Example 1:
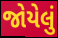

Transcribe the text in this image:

જોયેલું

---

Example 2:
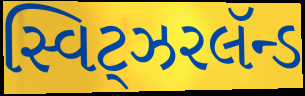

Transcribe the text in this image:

સ્વિટ્ઝરલૅન્ડ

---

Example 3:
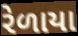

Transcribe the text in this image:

રેળાયા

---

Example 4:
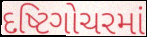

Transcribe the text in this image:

દષ્ટિગોચરમાં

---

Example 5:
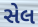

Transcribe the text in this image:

સેલ